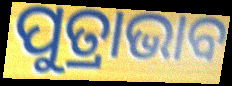
ପୁତ୍ରାଭାବ